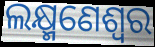
ଲକ୍ଷ୍ମଣେଶ୍ୱର